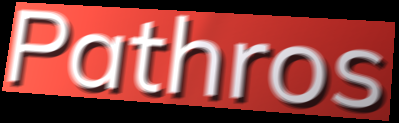
Pathros